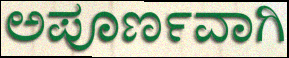
ಅಪೂರ್ಣವಾಗಿ